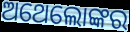
ଅଥେଲୋଙ୍କର